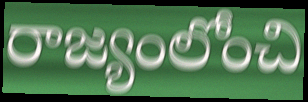
రాజ్యంలోంచి